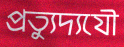
প্রত্যুদ্যযৌ